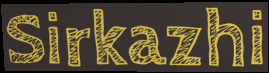
Sirkazhi